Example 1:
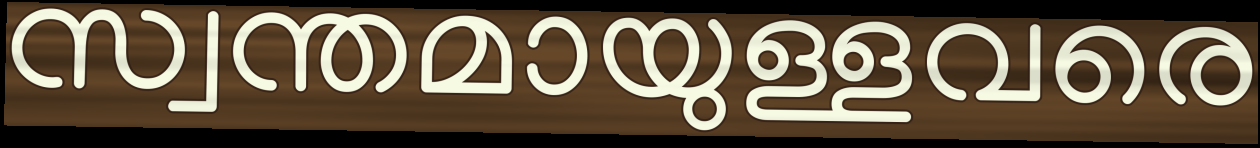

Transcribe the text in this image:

സ്വന്തമായുള്ളവരെ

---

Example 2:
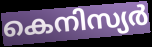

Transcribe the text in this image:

കെനിസ്യർ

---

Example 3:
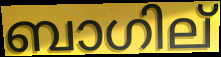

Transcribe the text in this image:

ബാഗില്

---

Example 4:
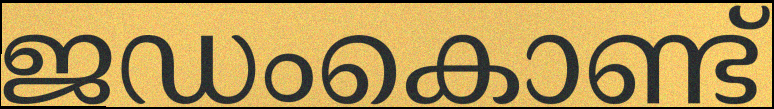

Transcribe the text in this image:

ജഡംകൊണ്ട്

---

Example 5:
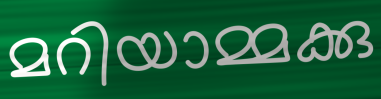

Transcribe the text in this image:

മറിയാമ്മക്കു